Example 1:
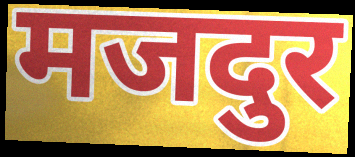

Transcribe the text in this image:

मजदुर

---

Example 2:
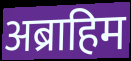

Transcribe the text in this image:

अब्राहिम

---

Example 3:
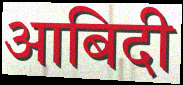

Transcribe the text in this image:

आबिदी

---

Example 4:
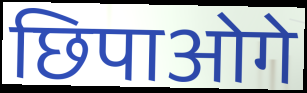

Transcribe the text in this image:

छिपाओगे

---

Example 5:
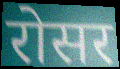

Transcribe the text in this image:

रोसर